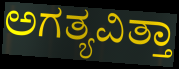
ಅಗತ್ಯವಿತ್ತಾ